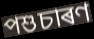
পশুচাৰণ